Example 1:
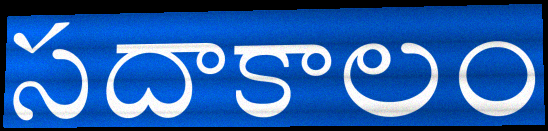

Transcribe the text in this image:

సదాకాలం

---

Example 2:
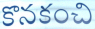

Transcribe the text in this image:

కొనకంచి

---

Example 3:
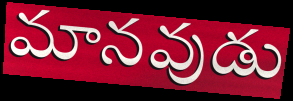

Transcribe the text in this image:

మానవుడు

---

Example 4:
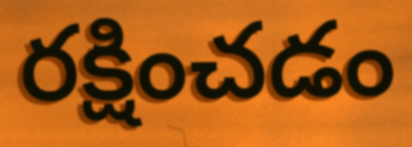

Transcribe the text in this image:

రక్షించడం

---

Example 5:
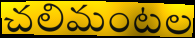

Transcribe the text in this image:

చలిమంటల